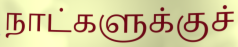
நாட்களுக்குச்